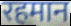
रहमान